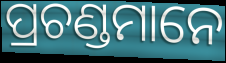
ପ୍ରଚଣ୍ଡମାନେ